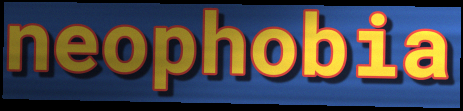
neophobia